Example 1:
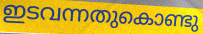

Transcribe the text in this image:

ഇടവന്നതുകൊണ്ടു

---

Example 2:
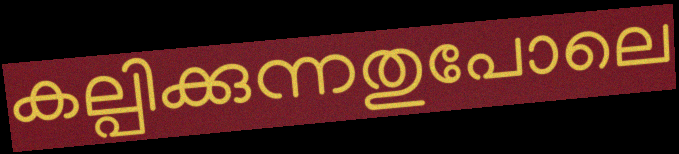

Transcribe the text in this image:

കല്പിക്കുന്നതുപോലെ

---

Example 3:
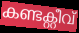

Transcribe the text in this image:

കണ്ടക്റ്റീവ്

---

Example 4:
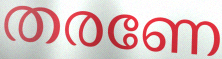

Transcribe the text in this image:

തരണേ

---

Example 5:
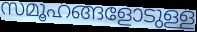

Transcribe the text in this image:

സമൂഹങ്ങളോടുള്ള